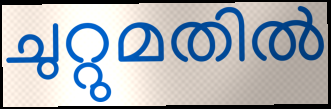
ചുറ്റുമതിൽ